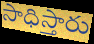
సాధిస్తారు